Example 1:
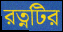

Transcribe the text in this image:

রত্নটির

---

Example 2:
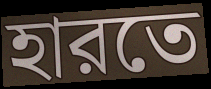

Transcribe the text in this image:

হারতে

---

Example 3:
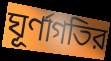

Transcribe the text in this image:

ঘূর্ণাগতির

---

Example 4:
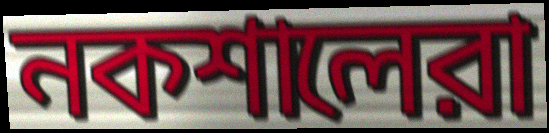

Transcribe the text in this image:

নকশালেরা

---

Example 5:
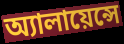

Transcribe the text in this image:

অ্যালায়েন্সে